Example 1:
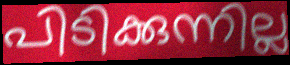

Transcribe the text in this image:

പിടിക്കുന്നില്ല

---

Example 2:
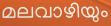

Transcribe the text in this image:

മലവാഴിയും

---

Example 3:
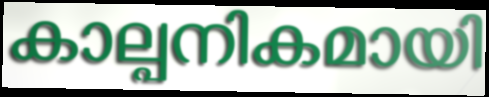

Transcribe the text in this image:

കാല്പനികമായി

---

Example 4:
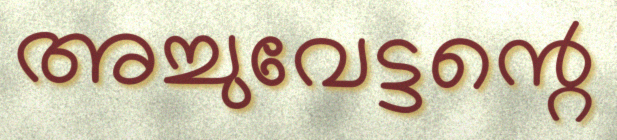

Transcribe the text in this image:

അച്ചുവേട്ടന്റെ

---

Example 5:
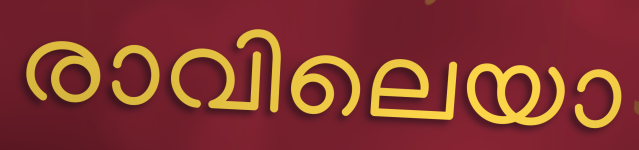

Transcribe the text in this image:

രാവിലെയാ